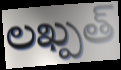
లఖ్పత్